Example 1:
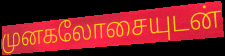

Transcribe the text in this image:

முனகலோசையுடன்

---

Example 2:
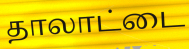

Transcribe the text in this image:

தாலாட்டை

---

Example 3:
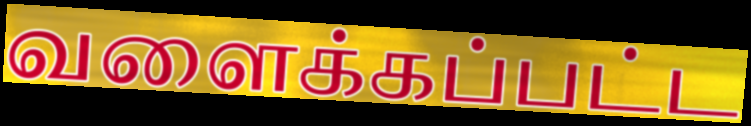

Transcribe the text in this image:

வளைக்கப்பட்ட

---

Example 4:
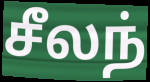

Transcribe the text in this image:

சீலந்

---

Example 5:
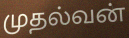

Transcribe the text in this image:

முதல்வன்